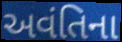
અવંતિના